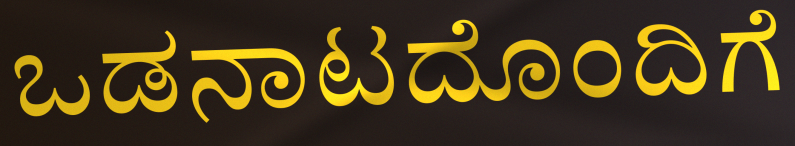
ಒಡನಾಟದೊಂದಿಗೆ